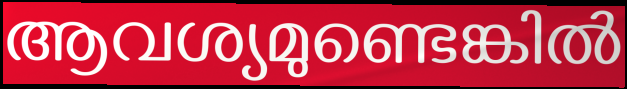
ആവശ്യമുണ്ടെങ്കിൽ